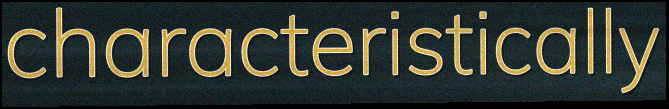
characteristically